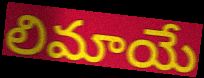
లిమాయే